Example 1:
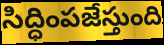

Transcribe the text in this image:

సిద్ధింపజేస్తుంది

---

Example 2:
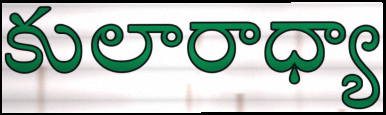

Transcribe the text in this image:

కులారాధ్యా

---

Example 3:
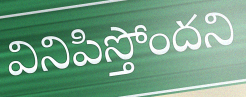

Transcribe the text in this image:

వినిపిస్తోందని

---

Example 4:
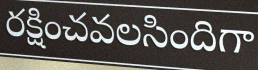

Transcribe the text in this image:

రక్షించవలసిందిగా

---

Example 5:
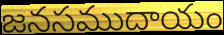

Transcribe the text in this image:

జనసముదాయం